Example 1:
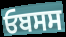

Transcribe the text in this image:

ਓਬਸਸ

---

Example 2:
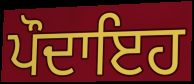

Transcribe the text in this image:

ਪੌਦਾਇਹ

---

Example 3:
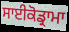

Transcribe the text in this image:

ਸਾਈਕੋਡ੍ਰਾਮਾ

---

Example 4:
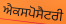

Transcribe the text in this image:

ਐਕਸਪੋਸੈਟਰੀ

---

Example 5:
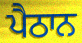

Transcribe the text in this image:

ਪੈਠਾਨ